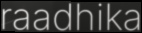
raadhika